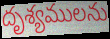
దృశ్యములను